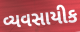
વ્યવસાયીક